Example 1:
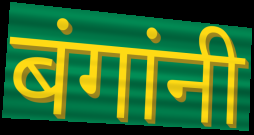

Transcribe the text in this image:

बंगांनी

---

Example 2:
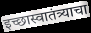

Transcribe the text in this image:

इच्छास्वातंत्र्याचा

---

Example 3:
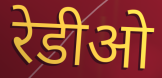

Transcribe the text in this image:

रेडीओ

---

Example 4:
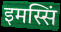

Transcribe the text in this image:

इमस्सिं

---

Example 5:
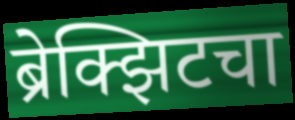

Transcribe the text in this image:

ब्रेक्झिटचा